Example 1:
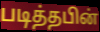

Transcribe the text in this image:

படித்தபின்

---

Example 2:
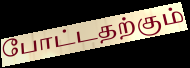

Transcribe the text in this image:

போட்டதற்கும்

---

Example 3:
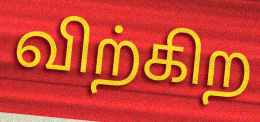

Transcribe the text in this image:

விற்கிற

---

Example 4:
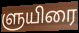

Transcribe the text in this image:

ளுயிரை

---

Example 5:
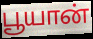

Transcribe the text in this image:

பூயான்